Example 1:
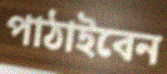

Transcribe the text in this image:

পাঠাইবেন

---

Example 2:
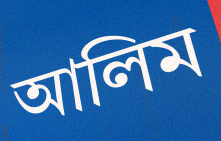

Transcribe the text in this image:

আলিম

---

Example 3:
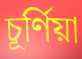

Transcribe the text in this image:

চূর্ণিয়া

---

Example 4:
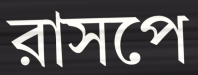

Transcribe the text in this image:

রাসপে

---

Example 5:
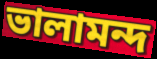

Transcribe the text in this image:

ভালামন্দ